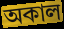
অকাল